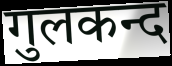
गुलकन्द